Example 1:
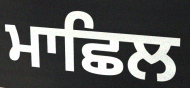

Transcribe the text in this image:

ਮਾਛਿਲ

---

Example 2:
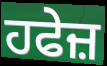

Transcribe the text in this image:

ਹਫੇਜ਼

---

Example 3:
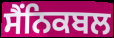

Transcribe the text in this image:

ਸੈੰਨਿਕਬਲ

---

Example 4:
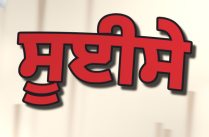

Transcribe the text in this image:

ਸੂਈਸੇ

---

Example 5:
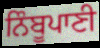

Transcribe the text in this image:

ਨਿੰਬੂਪਾਣੀ